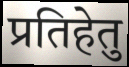
प्रतिहेतु